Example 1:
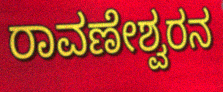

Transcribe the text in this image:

ರಾವಣೇಶ್ವರನ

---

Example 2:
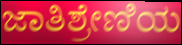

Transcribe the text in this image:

ಜಾತಿಶ್ರೇಣಿಯ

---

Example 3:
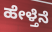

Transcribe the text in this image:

ಹೇಳ್ತೆನೆ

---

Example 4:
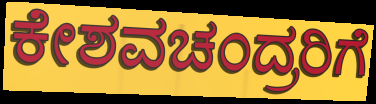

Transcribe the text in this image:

ಕೇಶವಚಂದ್ರರಿಗೆ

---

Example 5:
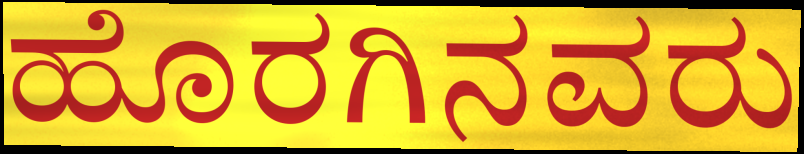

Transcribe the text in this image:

ಹೊರಗಿನವರು